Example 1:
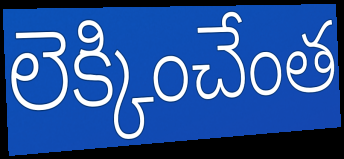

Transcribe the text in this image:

లెక్కించేంత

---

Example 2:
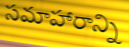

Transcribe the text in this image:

సమాహారాన్ని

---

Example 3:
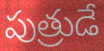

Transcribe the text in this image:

పుత్రుడే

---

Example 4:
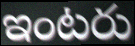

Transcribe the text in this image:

ఇంటరు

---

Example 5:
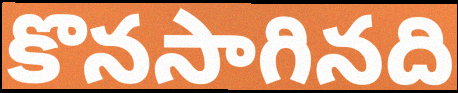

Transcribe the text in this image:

కొనసాగినది